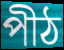
পীঠ